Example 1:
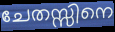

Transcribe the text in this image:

ചേതസ്സിനെ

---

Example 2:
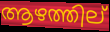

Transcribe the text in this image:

ആഴത്തില്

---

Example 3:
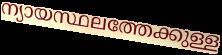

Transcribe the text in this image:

ന്യായസ്ഥലത്തേക്കുള്ള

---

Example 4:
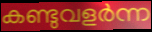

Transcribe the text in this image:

കണ്ടുവളർന്ന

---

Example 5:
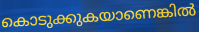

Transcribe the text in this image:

കൊടുക്കുകയാണെങ്കിൽ